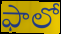
ఫాలో